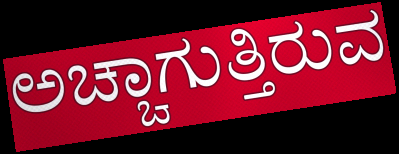
ಅಚ್ಚಾಗುತ್ತಿರುವ